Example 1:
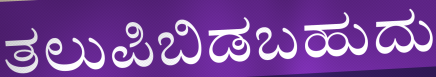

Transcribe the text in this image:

ತಲುಪಿಬಿಡಬಹುದು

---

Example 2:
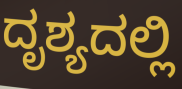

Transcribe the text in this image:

ದೃಶ್ಯದಲ್ಲಿ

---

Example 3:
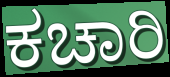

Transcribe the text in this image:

ಕಚಾರಿ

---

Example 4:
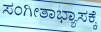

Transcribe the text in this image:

ಸಂಗೀತಾಭ್ಯಾಸಕ್ಕೆ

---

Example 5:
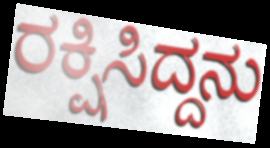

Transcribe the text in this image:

ರಕ್ಷಿಸಿದ್ದನು